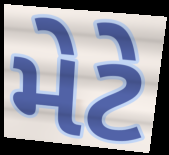
મેટે